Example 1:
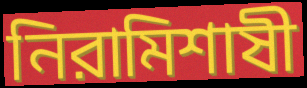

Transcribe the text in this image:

নিরামিশাষী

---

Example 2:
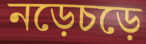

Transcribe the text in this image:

নড়েচড়ে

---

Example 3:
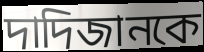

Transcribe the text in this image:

দাদিজানকে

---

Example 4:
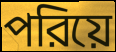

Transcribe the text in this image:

পরিয়ে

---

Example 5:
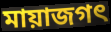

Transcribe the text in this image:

মায়াজগৎ